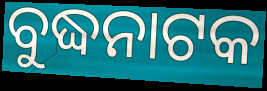
ବୁଦ୍ଧନାଟକ